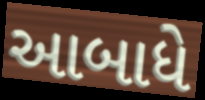
આબાધે